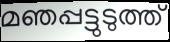
മഞപ്പട്ടുടുത്ത്